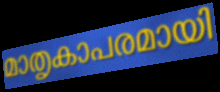
മാതൃകാപരമായി